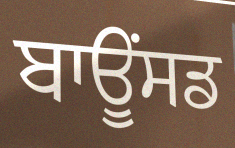
ਬਾਊਂਸਡ